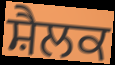
ਸ਼ੈਲਕ